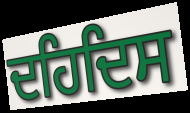
ਦਹਿਦਿਸ